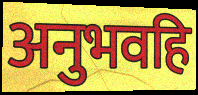
अनुभवहि